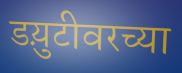
डय़ुटीवरच्या